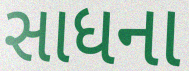
સાધના